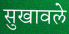
सुखावले